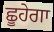
ਛੂਹੇਗਾ